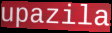
upazila